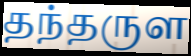
தந்தருள